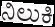
ನಿಲುಕಿ